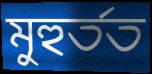
মুহুৰ্তত